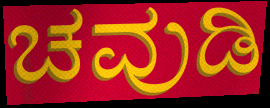
ಚವುಡಿ